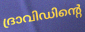
ദ്രാവിഡിന്റെ